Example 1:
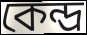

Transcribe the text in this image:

কেন্দ্ৰ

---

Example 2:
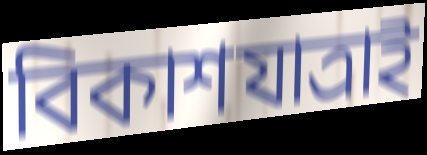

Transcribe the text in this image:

বিকাশযাত্ৰাই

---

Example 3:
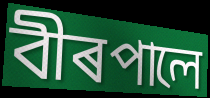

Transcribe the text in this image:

বীৰপালে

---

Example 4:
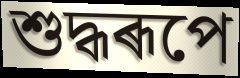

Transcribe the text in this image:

শুদ্ধৰূপে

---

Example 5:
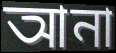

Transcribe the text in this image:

আনা